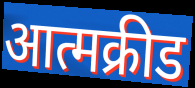
आत्मक्रीड